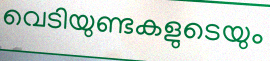
വെടിയുണ്ടകളുടെയും